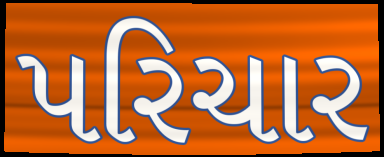
પરિચાર